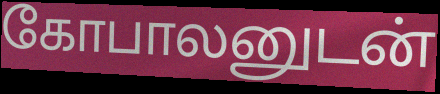
கோபாலனுடன்